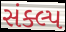
સંક્લ્પ